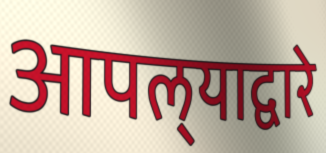
आपल्याद्वारे